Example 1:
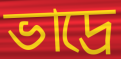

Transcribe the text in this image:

ভাদ্রে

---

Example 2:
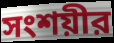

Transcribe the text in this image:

সংশয়ীর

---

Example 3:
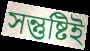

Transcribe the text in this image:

সন্তুষ্টিই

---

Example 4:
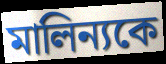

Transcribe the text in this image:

মালিন্যকে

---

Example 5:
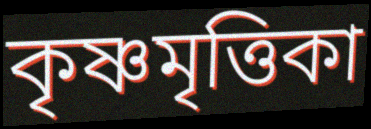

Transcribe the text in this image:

কৃষ্ণমৃত্তিকা